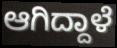
ಆಗಿದ್ದಾಳೆ